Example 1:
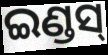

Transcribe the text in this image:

ଇଣ୍ଡସ୍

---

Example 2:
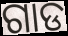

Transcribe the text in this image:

ଗାଡ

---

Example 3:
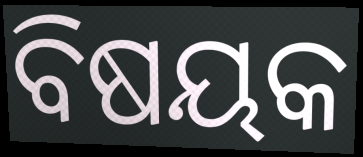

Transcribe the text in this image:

ବିଷୟକ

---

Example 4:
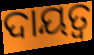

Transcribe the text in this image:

ଦାୟତ୍ବ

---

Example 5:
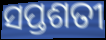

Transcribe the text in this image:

ସପ୍ତଶତୀ